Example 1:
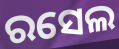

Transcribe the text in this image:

ରସେଲ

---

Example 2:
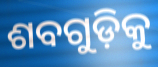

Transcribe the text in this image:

ଶବଗୁଡ଼ିକୁ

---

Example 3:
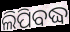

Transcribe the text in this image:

ଲିପିବଦ୍ଧ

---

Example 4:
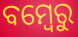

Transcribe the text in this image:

ବମ୍ବେରୁ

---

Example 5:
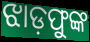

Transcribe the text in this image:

ଝାଡ଼ଫୁଙ୍କ